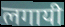
लगायी